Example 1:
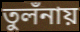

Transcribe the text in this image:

তুলঁনায়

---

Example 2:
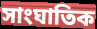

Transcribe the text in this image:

সাংঘাতিক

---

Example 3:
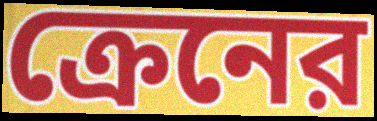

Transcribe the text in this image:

ক্রেনের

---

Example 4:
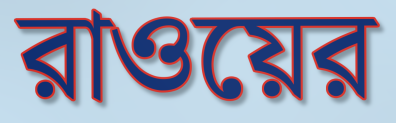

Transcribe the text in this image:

রাওয়ের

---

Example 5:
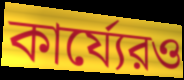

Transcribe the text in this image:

কার্য্যেরও